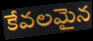
కేవలమైన